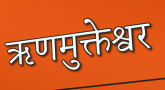
ऋणमुक्तेश्वर